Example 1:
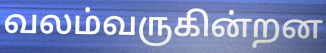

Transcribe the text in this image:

வலம்வருகின்றன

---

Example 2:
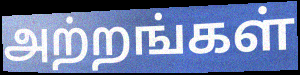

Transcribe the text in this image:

அற்றங்கள்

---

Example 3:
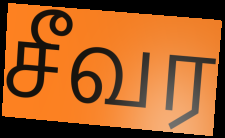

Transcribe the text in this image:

சீவர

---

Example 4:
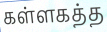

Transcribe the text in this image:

கள்ளகத்த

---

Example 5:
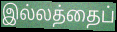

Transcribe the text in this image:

இல்லத்தைப்